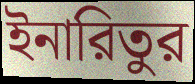
ইনারিতুর